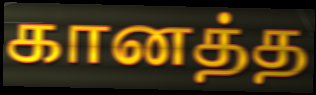
கானத்த